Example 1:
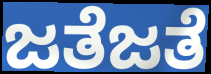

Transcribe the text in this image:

ಜತೆಜತೆ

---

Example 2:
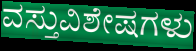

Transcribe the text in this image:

ವಸ್ತುವಿಶೇಷಗಳು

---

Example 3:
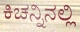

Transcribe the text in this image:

ಕಿಚನ್ನಿನಲ್ಲಿ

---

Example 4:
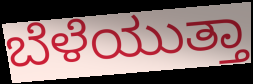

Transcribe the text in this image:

ಬೆಳೆಯುತ್ತಾ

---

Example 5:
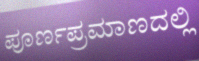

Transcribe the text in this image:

ಪೂರ್ಣಪ್ರಮಾಣದಲ್ಲಿ